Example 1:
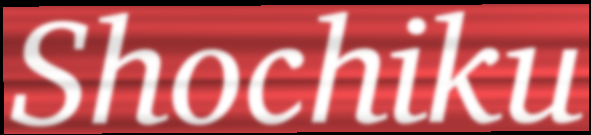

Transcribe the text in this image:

Shochiku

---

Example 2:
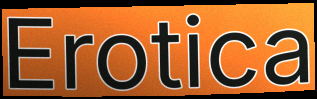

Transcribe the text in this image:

Erotica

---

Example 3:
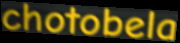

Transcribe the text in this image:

chotobela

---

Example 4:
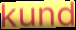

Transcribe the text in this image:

kund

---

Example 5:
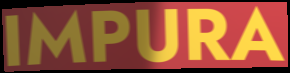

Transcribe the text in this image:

IMPURA